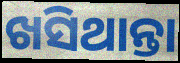
ଖସିଥାନ୍ତା